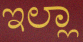
ಇಲ್ಲಾ